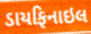
ડાયફિનાઇલ